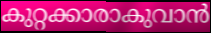
കുറ്റക്കാരാകുവാൻ